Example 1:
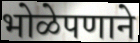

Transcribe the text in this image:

भोळेपणाने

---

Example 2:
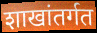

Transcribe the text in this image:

शाखांतर्गत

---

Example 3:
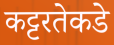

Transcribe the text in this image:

कट्टरतेकडे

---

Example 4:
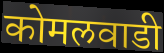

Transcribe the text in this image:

कोमलवाडी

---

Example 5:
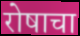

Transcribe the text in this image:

रोषाचा